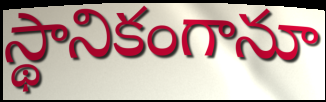
స్థానికంగానూ